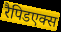
रैपिडएक्स